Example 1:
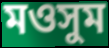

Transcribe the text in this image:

মওসুম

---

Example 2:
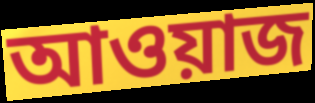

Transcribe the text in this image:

আওয়াজ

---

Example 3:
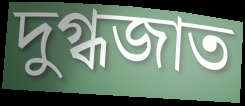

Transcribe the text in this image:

দুগ্ধজাত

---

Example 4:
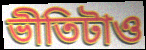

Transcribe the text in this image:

ভীতিটাও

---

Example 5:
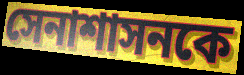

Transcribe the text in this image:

সেনাশাসনকে